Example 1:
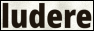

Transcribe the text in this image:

ludere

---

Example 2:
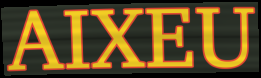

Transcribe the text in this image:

AIXEU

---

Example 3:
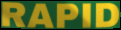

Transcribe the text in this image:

RAPID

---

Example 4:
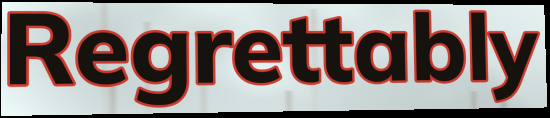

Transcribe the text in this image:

Regrettably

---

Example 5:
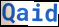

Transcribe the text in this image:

Qaid